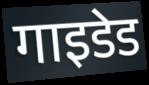
गाइडेड